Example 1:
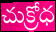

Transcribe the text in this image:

చుక్రోధ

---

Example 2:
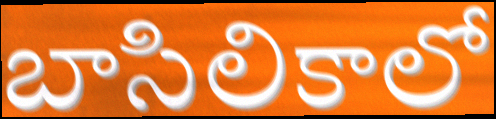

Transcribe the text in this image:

బాసిలికాలో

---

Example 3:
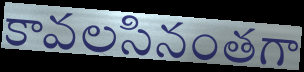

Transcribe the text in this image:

కావలసినంతగా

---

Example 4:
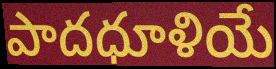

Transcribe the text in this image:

పాదధూళియే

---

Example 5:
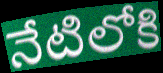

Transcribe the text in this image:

నేటిలోకి